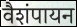
वैशंपायन